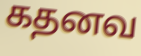
கதனவ